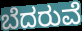
ಬೆದರುವೆ